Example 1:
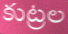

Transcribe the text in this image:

కుట్రల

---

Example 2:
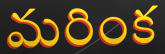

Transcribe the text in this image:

మరింక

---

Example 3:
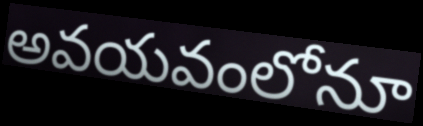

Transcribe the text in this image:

అవయవంలోనూ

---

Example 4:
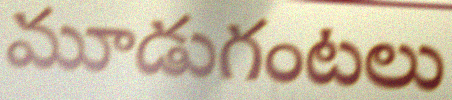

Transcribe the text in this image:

మూడుగంటలు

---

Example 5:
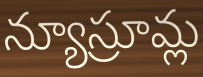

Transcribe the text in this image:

న్యూస్రూమ్ల